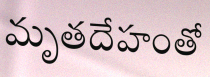
మృతదేహంతో